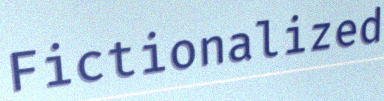
Fictionalized